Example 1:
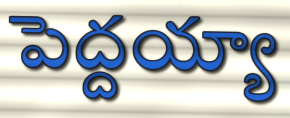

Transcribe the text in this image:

పెద్దయ్యా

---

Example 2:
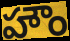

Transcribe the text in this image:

హౌం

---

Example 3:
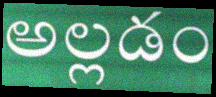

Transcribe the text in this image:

అల్లడం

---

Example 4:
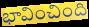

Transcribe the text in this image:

భావించింది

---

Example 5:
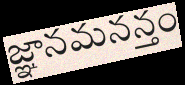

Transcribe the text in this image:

జ్ఞానమనన్తం